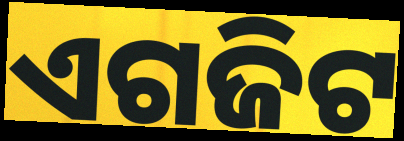
ଏଗଜିଟ